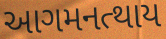
આગમનત્થાય